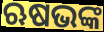
ଋଷଭଙ୍କ